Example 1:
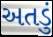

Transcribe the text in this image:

અતડું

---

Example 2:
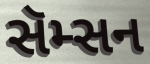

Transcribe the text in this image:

સૅમ્સન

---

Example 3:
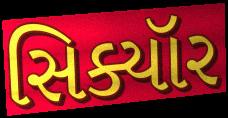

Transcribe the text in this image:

સિક્યૉર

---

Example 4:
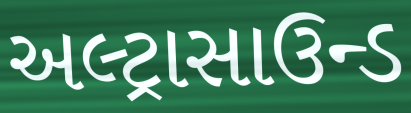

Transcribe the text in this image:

અલ્ટ્રાસાઉન્ડ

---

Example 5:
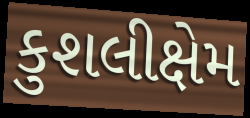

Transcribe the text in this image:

કુશલીક્ષેમ